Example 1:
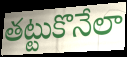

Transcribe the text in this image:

తట్టుకొనేలా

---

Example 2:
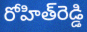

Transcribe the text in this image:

రోహిత్‌రెడ్డి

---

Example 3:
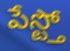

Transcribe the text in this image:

పేస్ట్తో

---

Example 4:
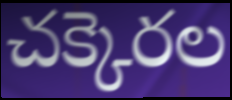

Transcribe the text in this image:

చక్కెరల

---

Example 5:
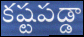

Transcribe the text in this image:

కష్టపడ్డా